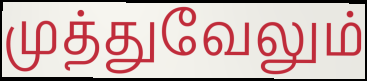
முத்துவேலும்